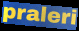
praleri